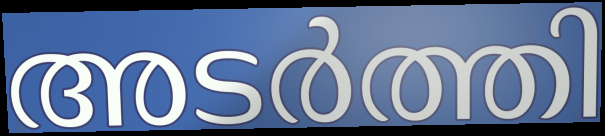
അടർത്തി